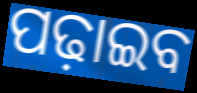
ପଢ଼ାଇବ